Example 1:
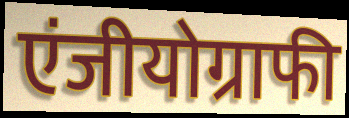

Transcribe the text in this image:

एंजीयोग्राफी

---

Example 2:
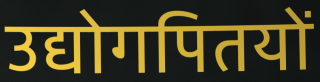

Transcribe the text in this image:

उद्योगपितयों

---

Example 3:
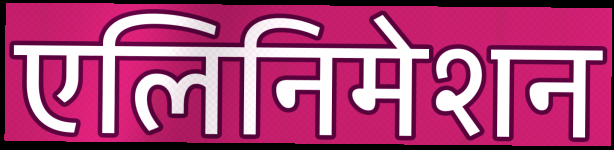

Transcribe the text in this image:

एलिनिमेशन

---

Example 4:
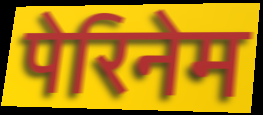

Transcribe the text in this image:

पेरिनेम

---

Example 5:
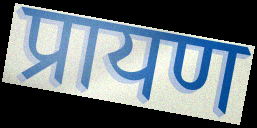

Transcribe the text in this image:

प्रायण